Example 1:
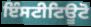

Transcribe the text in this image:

ਇੰਸਟੀਟਿਊਟੋ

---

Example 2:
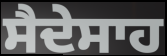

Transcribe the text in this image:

ਸੈਦੇਸਾਹ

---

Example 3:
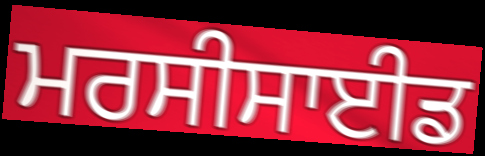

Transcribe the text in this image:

ਮਰਸੀਸਾਈਡ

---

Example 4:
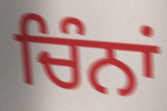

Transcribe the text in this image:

ਚਿੰਨਾਂ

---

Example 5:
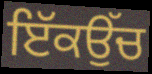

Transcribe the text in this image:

ਇੱਕਉੱਚ